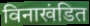
विनाखंडित